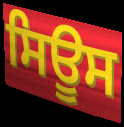
ਸਿਊਸ